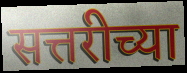
सत्तरीच्या